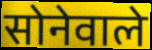
सोनेवाले